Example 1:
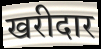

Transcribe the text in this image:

खरीदार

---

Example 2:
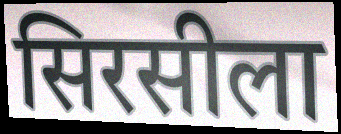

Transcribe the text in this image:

सिरसीला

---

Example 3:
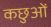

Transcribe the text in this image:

कछुओं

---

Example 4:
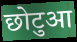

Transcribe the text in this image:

छोटुआ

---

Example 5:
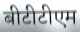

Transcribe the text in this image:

बीटीटीएम